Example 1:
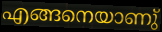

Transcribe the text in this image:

എങ്ങനെയാണു്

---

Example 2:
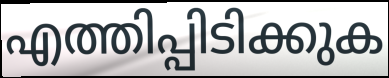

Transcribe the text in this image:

എത്തിപ്പിടിക്കുക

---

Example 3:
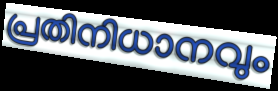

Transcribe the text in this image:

പ്രതിനിധാനവും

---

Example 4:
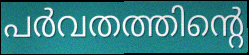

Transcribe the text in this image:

പർവതത്തിന്റെ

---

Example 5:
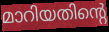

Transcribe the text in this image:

മാറിയതിന്റെ